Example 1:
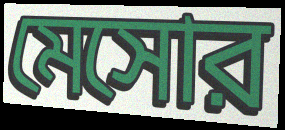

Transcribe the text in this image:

মেসোর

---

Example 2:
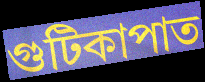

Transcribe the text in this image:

গুটিকাপাত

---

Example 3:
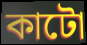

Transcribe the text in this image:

কাটো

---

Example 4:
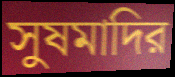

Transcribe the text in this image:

সুষমাদির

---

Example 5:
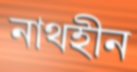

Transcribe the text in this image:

নাথহীন